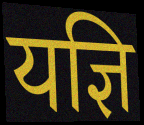
यज्ञि